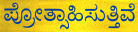
ಪ್ರೋತ್ಸಾಹಿಸುತ್ತಿವೆ